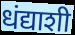
धंद्याशी